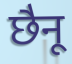
छैनू